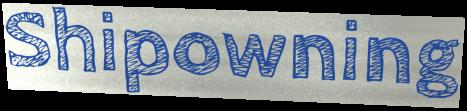
Shipowning